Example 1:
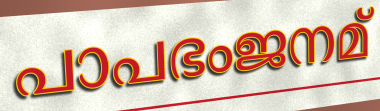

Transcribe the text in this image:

പാപഭംജനമ്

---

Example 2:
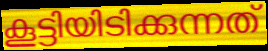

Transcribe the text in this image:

കൂട്ടിയിടിക്കുന്നത്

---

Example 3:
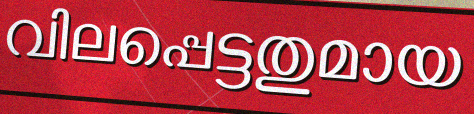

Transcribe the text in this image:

വിലപ്പെട്ടതുമായ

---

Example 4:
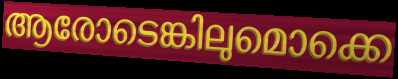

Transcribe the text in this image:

ആരോടെങ്കിലുമൊക്കെ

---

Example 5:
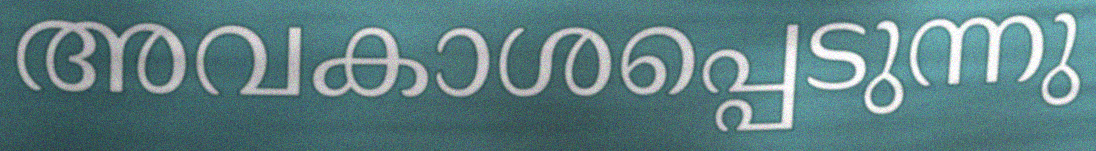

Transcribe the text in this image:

അവകാശപ്പെടുന്നു